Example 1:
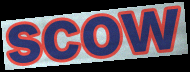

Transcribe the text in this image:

scow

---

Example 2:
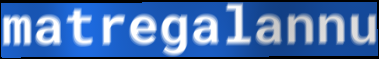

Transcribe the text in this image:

matregalannu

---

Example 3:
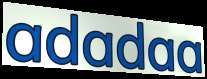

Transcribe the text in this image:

adadaa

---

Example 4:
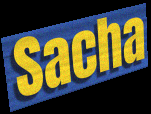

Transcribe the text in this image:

Sacha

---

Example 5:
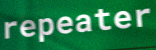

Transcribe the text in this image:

repeater